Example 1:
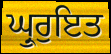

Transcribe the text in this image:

ਘ੍ਰੁਰੁਇਤ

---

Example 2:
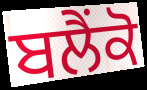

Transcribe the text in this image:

ਬਲੈਂਕੋ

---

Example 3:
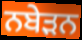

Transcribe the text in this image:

ਨਬੇੜਨ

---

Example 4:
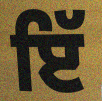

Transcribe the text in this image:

ਇੱ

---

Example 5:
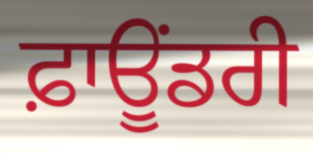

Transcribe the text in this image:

ਫ਼ਾਊਂਡਰੀ